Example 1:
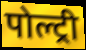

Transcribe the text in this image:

पोल्ट्री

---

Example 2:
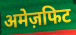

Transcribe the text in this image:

अमेज़फिट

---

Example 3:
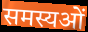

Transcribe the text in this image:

समस्यओं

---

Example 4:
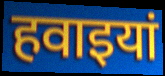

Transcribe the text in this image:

हवाइयां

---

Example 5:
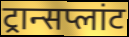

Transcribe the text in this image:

ट्रान्सप्लांट